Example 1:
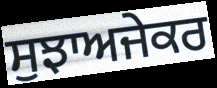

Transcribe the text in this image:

ਸੁਝਾਅਜੇਕਰ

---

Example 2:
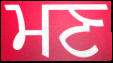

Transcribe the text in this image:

ਮਣ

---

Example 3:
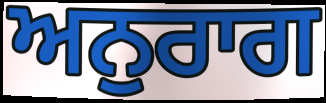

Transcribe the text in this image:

ਅਨੁਰਾਗ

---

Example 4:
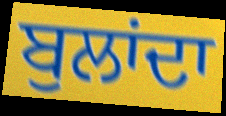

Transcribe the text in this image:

ਬੁਲਾਂਦਾ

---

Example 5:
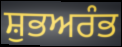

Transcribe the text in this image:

ਸ਼ੁਭਅਰੰਭ